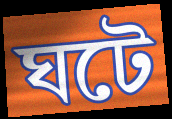
ঘটে